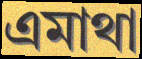
এমাথা